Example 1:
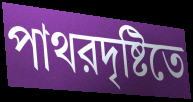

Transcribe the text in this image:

পাথরদৃষ্টিতে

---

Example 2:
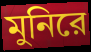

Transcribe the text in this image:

মুনিরে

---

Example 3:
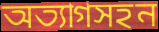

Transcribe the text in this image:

অত্যাগসহন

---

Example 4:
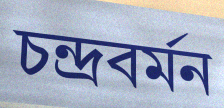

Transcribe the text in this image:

চন্দ্রবর্মন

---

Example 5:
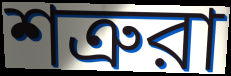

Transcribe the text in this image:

শত্রুরা